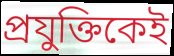
প্রযুক্তিকেই